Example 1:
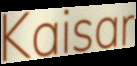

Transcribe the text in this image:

Kaisar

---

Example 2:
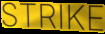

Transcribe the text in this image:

STRIKE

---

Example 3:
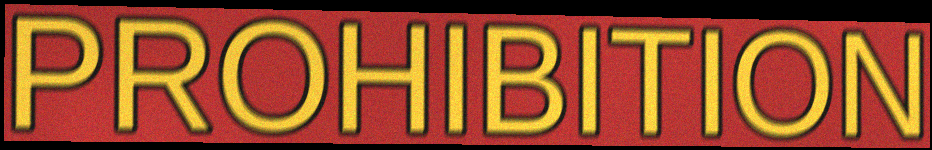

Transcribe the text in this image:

PROHIBITION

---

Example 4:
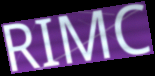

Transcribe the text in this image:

RIMC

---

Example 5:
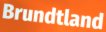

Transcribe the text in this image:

Brundtland